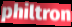
philtron